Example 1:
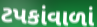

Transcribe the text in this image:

ટપકાંવાળાં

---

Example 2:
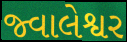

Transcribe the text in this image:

જ્વાલેશ્વર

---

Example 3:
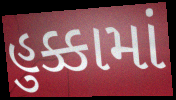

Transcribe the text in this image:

હુક્કામાં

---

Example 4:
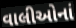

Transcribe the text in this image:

વાલીઓનાં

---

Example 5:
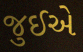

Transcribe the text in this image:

જુઈએ